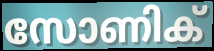
സോണിക്